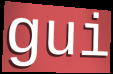
gui